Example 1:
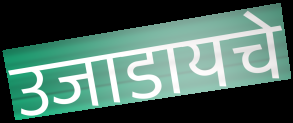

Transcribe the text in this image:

उजाडायचे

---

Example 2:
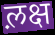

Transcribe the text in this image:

ल़क्ष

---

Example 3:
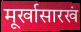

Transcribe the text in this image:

मूर्खासारखं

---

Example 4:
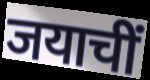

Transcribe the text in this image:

जयाचीं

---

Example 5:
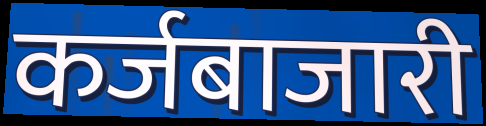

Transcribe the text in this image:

कर्जबाजारी